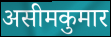
असीमकुमार